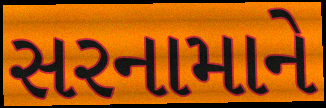
સરનામાને